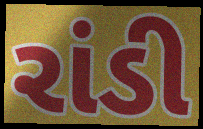
રાંડી